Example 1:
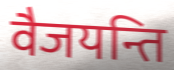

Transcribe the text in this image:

वैजयन्ति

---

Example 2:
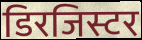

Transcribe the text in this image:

डिरजिस्टर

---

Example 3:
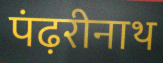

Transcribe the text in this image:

पंढ़रीनाथ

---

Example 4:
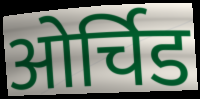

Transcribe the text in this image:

ओर्चिड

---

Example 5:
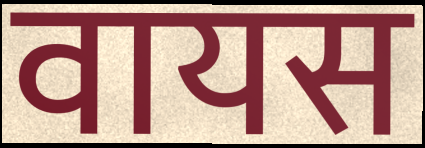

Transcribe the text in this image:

वायस